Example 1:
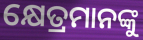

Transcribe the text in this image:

କ୍ଷେତ୍ରମାନଙ୍କୁ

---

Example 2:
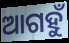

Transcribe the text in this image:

ଆଗହୁଁ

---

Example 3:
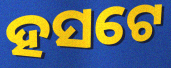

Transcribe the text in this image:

ହସଟେ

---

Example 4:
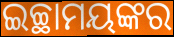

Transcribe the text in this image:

ଇଚ୍ଛାମୟଙ୍କର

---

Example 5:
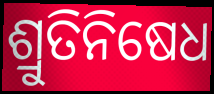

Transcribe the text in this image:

ଶ୍ରୁତିନିଷେଧ